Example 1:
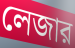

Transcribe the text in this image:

লেজার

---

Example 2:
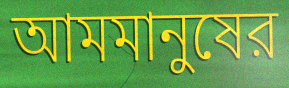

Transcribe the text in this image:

আমমানুষের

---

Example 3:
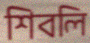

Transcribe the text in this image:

শিবলি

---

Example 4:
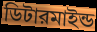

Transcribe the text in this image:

ডিটারমাইন্ড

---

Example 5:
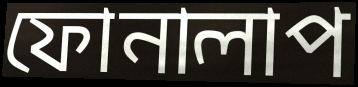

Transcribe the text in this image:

ফোনালাপ